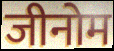
जीनोम